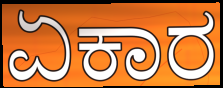
ಏಕಾರ